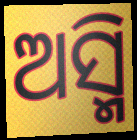
ଅସ୍ମି